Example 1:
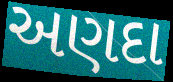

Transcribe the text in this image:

અણદા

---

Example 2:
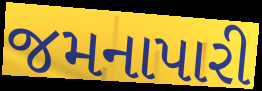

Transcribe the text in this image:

જમનાપારી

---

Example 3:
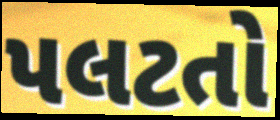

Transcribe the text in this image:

પલટતો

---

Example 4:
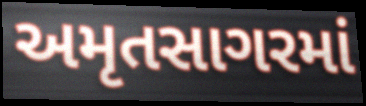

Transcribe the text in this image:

અમૃતસાગરમાં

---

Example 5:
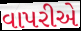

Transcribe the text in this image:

વાપરીએ